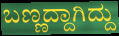
ಬಣ್ಣದ್ದಾಗಿದ್ದು